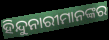
ହିନ୍ଦୁନାରୀମାନଙ୍କର